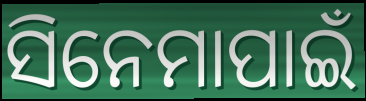
ସିନେମାପାଇଁ